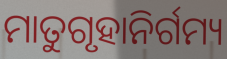
ମାତୁଗୃହାନିର୍ଗମ୍ୟ